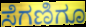
ಸೆಗಣಿಗೂ